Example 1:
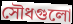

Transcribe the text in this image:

সৌধগুলো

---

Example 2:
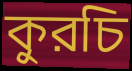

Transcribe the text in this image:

কুরচি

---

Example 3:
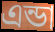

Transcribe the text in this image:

এন্ডা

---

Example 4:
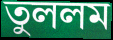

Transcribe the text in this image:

তুললম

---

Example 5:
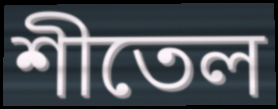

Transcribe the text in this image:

শীতেল